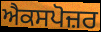
ਐਕਸਪੋਜ਼ਰ